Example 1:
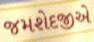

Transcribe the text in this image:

જમશેદજીએ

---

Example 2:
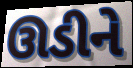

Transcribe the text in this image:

ઊડીને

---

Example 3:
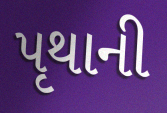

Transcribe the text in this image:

પૃથાની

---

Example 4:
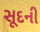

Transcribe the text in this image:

સૂદની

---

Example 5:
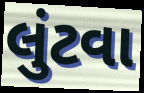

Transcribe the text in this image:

લુંટવા